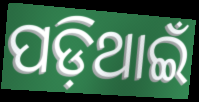
ପଡ଼ିଥାଇଁ